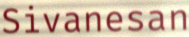
Sivanesan